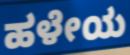
ಹಳೇಯ